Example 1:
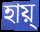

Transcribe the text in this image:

হায়্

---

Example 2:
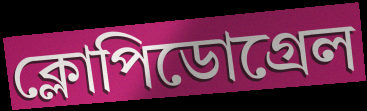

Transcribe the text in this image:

ক্লোপিডোগ্রেল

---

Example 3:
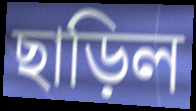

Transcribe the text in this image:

ছাড়িল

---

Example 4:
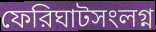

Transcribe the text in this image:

ফেরিঘাটসংলগ্ন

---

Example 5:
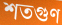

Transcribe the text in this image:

শতগুণ